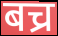
बच्र